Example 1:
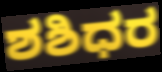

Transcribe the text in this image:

ಶಶಿಧರ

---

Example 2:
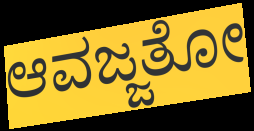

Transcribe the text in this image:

ಆವಜ್ಜತೋ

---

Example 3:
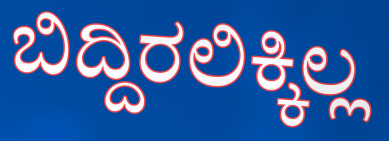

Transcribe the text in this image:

ಬಿದ್ದಿರಲಿಕ್ಕಿಲ್ಲ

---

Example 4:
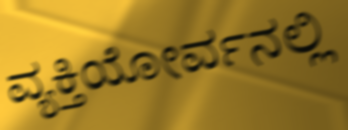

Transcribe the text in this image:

ವ್ಯಕ್ತಿಯೋರ್ವನಲ್ಲಿ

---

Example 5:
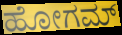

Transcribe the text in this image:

ಹೋಗಮ್